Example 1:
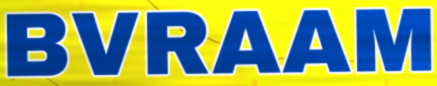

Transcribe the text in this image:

BVRAAM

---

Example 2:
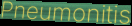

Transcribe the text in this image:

Pneumonitis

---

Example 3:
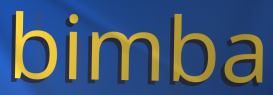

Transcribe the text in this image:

bimba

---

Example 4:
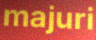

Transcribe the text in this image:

majuri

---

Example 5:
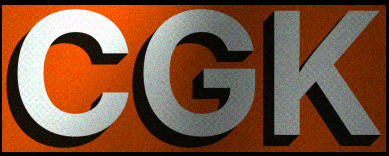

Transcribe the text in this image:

CGK